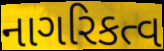
નાગરિકત્વ